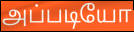
அப்படியோ